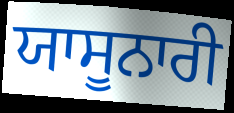
ਯਾਸੂਨਾਰੀ